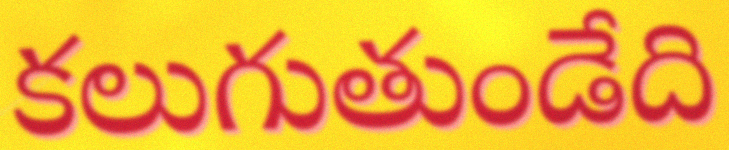
కలుగుతుండేది